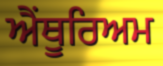
ਐਂਥੂਰਿਅਮ